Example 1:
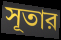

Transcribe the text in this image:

সূতার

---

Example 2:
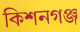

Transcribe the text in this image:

কিশনগঞ্জ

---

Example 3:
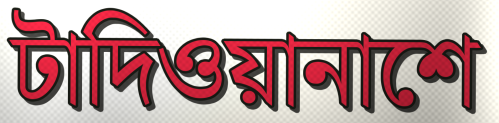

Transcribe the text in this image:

টাদিওয়ানাশে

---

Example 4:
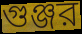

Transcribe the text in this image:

গুঞ্জর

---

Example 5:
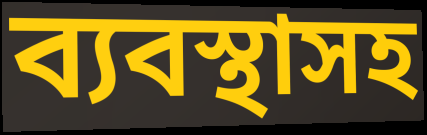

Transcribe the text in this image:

ব্যবস্থাসহ